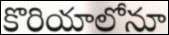
కొరియాలోనూ